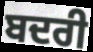
ਬਦਰੀ